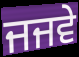
ਜਜਵੇ